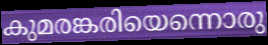
കുമരങ്കരിയെന്നൊരു